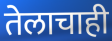
तेलाचाही